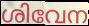
ശിവേന